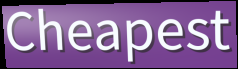
Cheapest